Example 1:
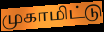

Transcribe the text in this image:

முகாமிட்டு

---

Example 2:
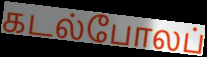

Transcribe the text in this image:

கடல்போலப்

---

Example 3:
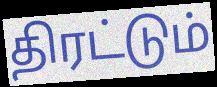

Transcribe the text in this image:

திரட்டும்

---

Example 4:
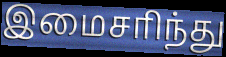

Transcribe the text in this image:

இமைசரிந்து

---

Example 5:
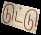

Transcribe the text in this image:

டுட்டு